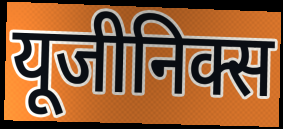
यूजीनिक्स